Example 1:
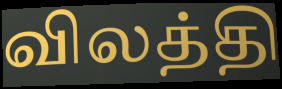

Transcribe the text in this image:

விலத்தி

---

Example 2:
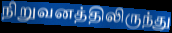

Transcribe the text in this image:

நிறுவனத்திலிருந்து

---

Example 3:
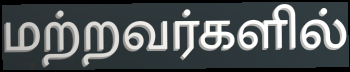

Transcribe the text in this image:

மற்றவர்களில்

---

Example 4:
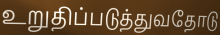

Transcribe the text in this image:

உறுதிப்படுத்துவதோடு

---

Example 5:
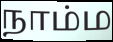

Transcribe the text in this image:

நாம்ம